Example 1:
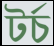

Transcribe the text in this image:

টৰ্চ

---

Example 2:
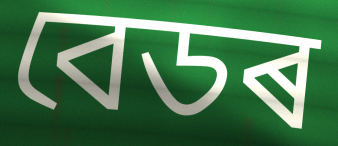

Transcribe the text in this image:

বেডৰ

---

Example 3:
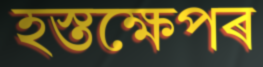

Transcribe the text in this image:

হস্তক্ষেপৰ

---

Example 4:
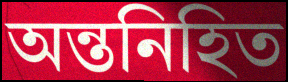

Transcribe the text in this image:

অন্তনিহিত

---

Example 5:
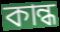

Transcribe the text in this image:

কান্ধ